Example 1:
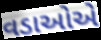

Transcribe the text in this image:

વડાઓએ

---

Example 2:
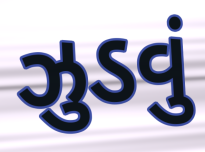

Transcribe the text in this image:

ઝુડવું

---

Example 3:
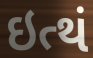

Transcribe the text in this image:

ઇત્થં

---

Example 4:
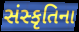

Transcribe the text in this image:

સંસ્કૃતિના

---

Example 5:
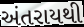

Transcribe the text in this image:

અંતરાયથી